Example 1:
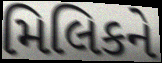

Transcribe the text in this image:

મિલિકને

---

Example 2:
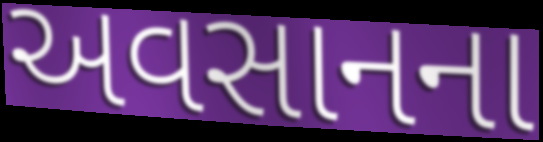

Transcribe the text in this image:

અવસાનના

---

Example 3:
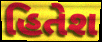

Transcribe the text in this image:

હિતેશ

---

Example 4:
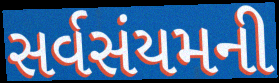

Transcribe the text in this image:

સર્વસંયમની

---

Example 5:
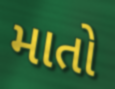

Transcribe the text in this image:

માતો